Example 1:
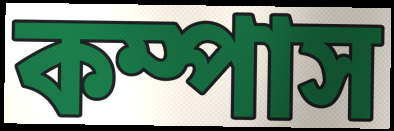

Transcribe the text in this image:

কম্পাস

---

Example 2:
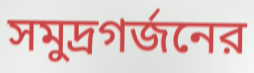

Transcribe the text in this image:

সমুদ্রগর্জনের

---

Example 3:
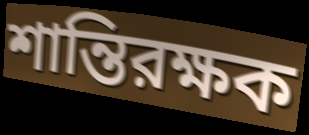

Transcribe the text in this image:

শান্তিরক্ষক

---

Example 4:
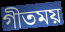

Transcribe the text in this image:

গীতময়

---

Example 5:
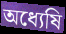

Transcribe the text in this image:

অধ্যেষি